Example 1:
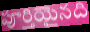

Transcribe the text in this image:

పూర్తియైనది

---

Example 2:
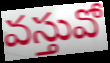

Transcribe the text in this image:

వస్తువో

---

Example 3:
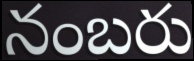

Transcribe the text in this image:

నంబరు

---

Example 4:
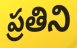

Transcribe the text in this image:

ప్రతిని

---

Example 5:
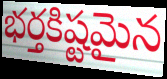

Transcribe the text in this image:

భర్తకిష్టమైన